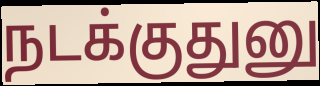
நடக்குதுனு